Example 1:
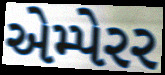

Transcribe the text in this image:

એમ્પેરર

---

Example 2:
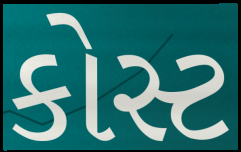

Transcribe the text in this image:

કોસ્ટ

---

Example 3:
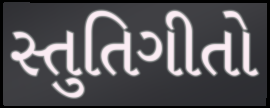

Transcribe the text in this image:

સ્તુતિગીતો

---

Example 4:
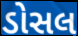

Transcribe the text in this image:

ડોસલ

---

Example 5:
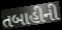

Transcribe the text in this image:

તબાહીની